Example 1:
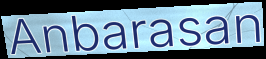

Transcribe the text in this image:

Anbarasan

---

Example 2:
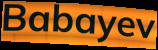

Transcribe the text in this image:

Babayev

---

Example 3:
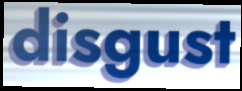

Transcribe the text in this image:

disgust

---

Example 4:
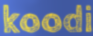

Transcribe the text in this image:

koodi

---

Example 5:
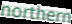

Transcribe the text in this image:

northern